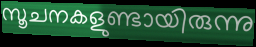
സൂചനകളുണ്ടായിരുന്നു